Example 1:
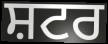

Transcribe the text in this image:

ਸ਼ਟਰ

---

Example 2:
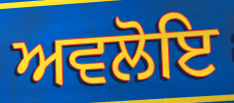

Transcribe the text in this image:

ਅਵਲੋਇ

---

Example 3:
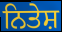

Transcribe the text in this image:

ਨਿਤੇਸ਼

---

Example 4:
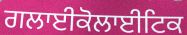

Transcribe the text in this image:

ਗਲਾਈਕੋਲਾਈਟਿਕ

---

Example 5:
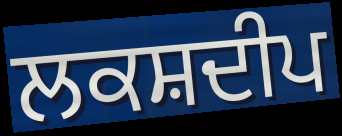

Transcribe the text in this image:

ਲਕਸ਼ਦੀਪ